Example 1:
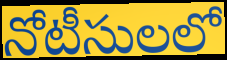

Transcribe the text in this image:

నోటీసులలో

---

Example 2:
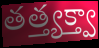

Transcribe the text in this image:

తత్త్యక్త్వా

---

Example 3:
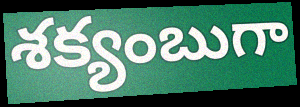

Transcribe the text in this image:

శక్యంబుగా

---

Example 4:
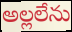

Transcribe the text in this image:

అల్లలేను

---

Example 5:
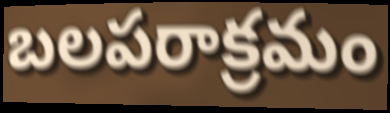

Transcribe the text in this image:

బలపరాక్రమం